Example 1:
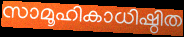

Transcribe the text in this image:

സാമൂഹികാധിഷ്ഠിത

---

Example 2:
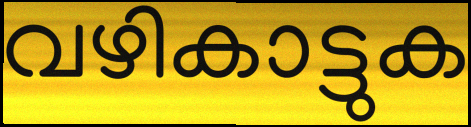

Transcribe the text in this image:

വഴികാട്ടുക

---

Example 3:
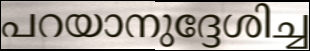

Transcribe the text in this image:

പറയാനുദ്ദേശിച്ച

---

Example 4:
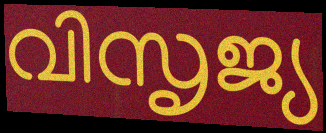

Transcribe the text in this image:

വിസൃജ്യ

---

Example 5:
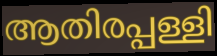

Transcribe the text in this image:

ആതിരപ്പള്ളി